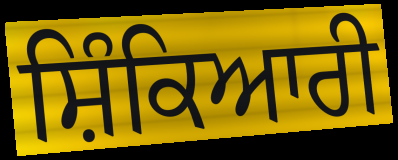
ਸ਼ਿੰਕਿਆਰੀ